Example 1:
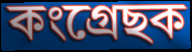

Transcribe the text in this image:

কংগ্ৰেছক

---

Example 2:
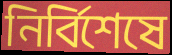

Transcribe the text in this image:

নিৰ্বিশেষে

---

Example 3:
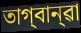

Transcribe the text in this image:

তাগ্‌বান্‌ৱা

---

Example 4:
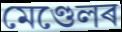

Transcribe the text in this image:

মেণ্ডেলৰ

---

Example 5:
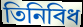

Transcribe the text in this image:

তিনিবিধ